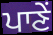
ਪਾਣੇਂ